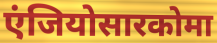
एंजियोसारकोमा